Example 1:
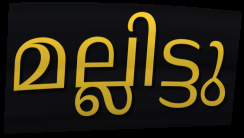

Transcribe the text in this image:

മല്ലിട്ടു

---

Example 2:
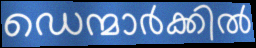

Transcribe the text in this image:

ഡെന്മാർക്കിൽ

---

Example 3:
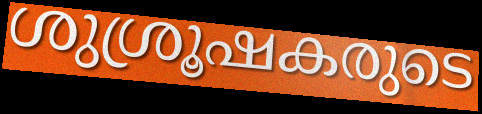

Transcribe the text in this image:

ശുശ്രൂഷകരുടെ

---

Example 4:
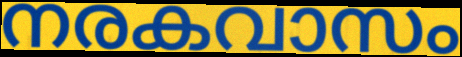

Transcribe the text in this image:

നരകവാസം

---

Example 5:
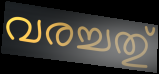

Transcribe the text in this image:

വരച്ചതു്